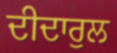
ਦੀਦਾਰੁਲ